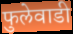
फुलेवाडी